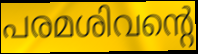
പരമശിവന്റെ